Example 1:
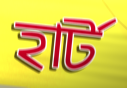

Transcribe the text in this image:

হাৰ্ট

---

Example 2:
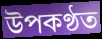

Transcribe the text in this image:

উপকণ্ঠত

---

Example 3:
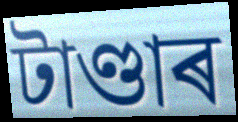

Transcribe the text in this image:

টাণ্ডাৰ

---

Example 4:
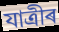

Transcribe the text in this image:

যাত্ৰীৰ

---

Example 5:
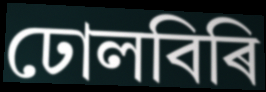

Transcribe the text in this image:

ঢোলবিৰি